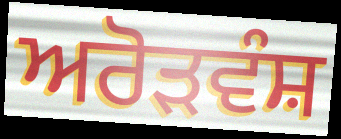
ਅਰੋੜਵੰਸ਼